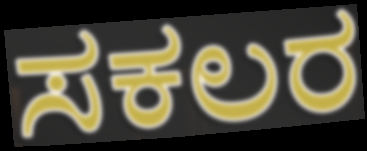
ಸಕಲರ